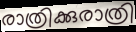
രാത്രിക്കുരാത്രി